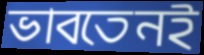
ভাবতেনই